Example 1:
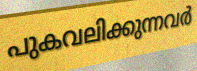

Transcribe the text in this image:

പുകവലിക്കുന്നവർ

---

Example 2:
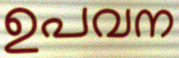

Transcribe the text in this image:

ഉപവന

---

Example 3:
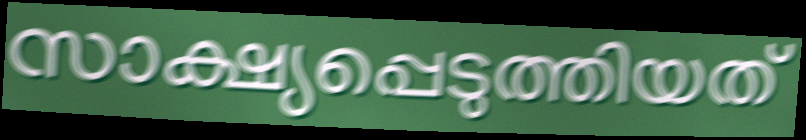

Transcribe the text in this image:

സാക്ഷ്യപ്പെടുത്തിയത്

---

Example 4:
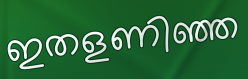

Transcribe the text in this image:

ഇതളണിഞ്ഞ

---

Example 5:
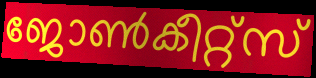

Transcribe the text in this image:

ജോൺകീറ്റ്സ്